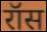
रॉस